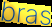
bras